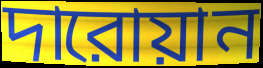
দারোয়ান